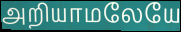
அறியாமலேயே